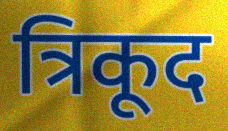
त्रिकूद